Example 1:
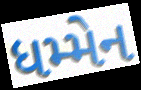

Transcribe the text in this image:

ધમ્મેન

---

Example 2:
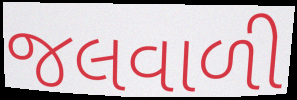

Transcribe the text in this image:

જલવાળી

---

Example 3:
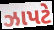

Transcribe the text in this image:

ઝાપટે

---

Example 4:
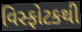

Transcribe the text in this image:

વિસ્ફોટકથી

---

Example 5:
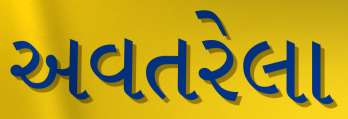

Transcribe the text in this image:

અવતરેલા